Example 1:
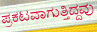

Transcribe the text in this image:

ಪ್ರಕಟವಾಗುತ್ತಿದ್ದವು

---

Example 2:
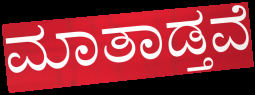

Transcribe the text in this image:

ಮಾತಾಡ್ತವೆ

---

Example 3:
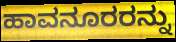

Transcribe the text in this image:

ಹಾವನೂರರನ್ನು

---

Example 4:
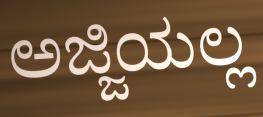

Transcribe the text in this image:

ಅಜ್ಜಿಯಲ್ಲ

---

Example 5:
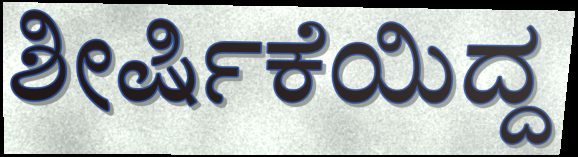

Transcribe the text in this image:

ಶೀರ್ಷಿಕೆಯಿದ್ದ